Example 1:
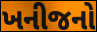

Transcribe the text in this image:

ખનીજનો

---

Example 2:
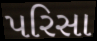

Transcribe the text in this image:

પરિસા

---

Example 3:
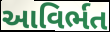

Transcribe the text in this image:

આવિર્ભત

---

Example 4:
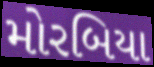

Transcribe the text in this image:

મોરબિયા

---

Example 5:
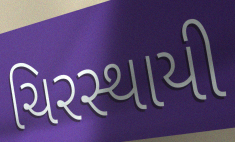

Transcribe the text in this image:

ચિરસ્થાયી